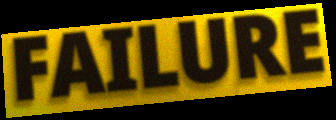
FAILURE